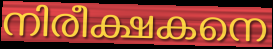
നിരീക്ഷകനെ